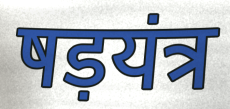
षड़यंत्र